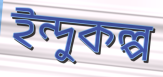
ইন্দুকল্প